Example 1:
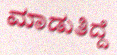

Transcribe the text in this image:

ಮಾಡುತಿದ್ದೆ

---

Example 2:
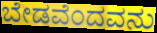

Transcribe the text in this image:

ಬೇಡವೆಂದವನು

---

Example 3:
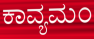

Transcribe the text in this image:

ಕಾವ್ಯಮಂ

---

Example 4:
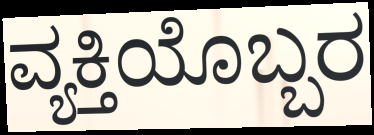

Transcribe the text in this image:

ವ್ಯಕ್ತಿಯೊಬ್ಬರ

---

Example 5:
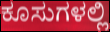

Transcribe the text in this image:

ಕೂಸುಗಳಲ್ಲಿ